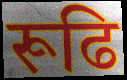
रूढि